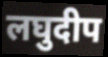
लघुदीप